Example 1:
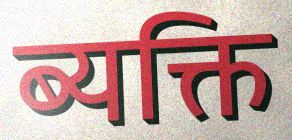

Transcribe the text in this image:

ब्यक्ति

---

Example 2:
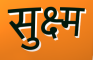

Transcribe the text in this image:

सुक्ष्म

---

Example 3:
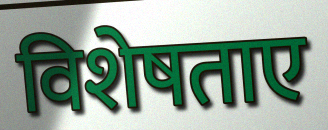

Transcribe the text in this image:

विशेषताए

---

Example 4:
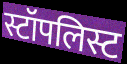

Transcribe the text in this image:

स्टॉपलिस्ट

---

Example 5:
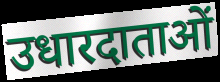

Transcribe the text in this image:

उधारदाताओं